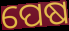
ପେଷ